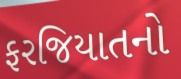
ફરજિયાતનો